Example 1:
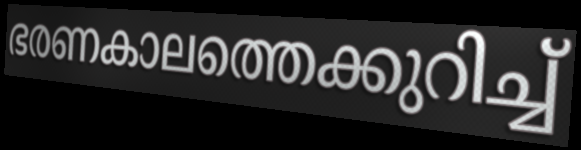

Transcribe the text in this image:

ഭരണകാലത്തെക്കുറിച്ച്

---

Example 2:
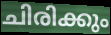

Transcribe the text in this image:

ചിരിക്കും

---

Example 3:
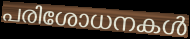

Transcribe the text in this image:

പരിശോധനകൾ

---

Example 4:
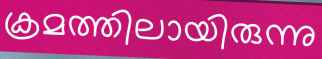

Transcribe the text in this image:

ക്രമത്തിലായിരുന്നു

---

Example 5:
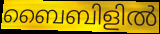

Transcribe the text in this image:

ബൈബിളിൽ